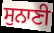
ਸੁਨਾਣੀ